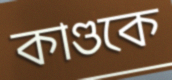
কাণ্ডকে